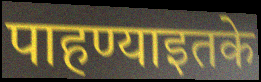
पाहण्याइतके